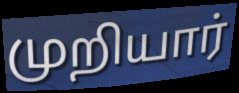
முறியார்